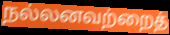
நல்லனவற்றைத்